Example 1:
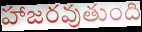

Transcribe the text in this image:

హాజరవుతుంది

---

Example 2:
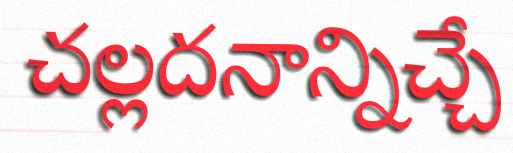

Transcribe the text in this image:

చల్లదనాన్నిచ్చే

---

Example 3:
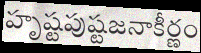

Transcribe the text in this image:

హృష్టపుష్టజనాకీర్ణం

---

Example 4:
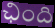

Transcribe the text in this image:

ఛింది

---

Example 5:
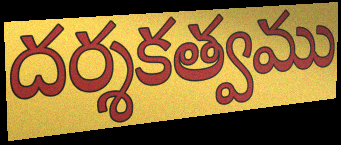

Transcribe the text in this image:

దర్శకత్వము